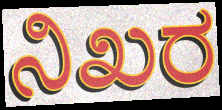
ನಿಖರ